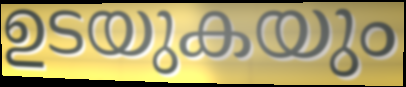
ഉടയുകയും